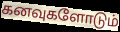
கனவுகளோடும்